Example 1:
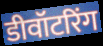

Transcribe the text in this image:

डीवॉटरिंग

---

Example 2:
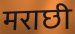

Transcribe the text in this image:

मराछी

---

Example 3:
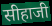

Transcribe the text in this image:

सीहाजी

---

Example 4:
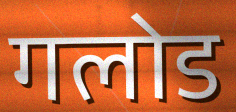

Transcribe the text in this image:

गलोड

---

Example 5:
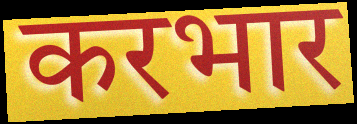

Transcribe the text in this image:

करभार